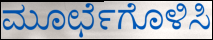
ಮೂರ್ಛೆಗೊಳಿಸಿ